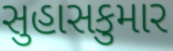
સુહાસકુમાર